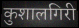
कुशालगिरी